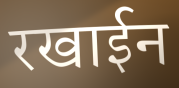
रखाईन